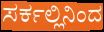
ಸರ್ಕಲ್ಲಿನಿಂದ